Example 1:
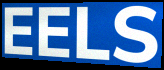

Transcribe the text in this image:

EELS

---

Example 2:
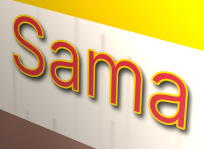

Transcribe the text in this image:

Sama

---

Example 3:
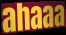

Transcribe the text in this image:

ahaaa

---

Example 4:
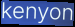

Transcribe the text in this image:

kenyon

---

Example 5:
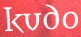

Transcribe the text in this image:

kudo